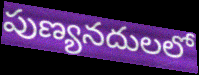
పుణ్యనదులలో